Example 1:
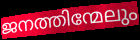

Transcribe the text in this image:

ജനത്തിന്മേലും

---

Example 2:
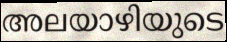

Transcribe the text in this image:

അലയാഴിയുടെ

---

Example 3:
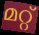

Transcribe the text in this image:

മറ്റ്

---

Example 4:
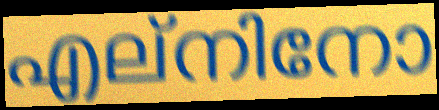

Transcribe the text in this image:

എല്നിനോ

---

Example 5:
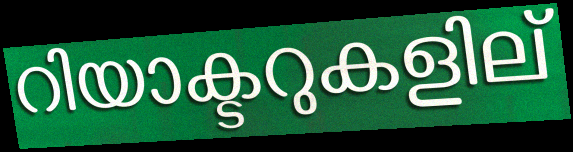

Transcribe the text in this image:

റിയാക്ടറുകളില്